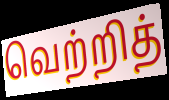
வெற்றித்